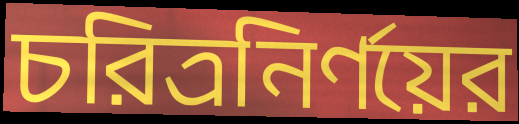
চরিত্রনির্ণয়ের